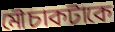
মৌচাকটাকে